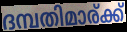
ദമ്പതിമാര്ക്ക്